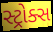
સ્ટ્રોક્સ